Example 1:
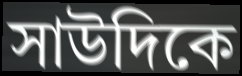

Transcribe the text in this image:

সাউদিকে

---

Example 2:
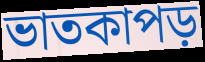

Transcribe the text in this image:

ভাতকাপড়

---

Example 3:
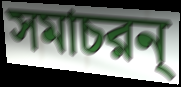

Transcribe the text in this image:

সমাচরন্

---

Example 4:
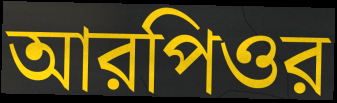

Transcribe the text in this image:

আরপিওর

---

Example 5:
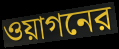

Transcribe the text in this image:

ওয়াগনের